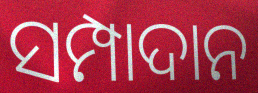
ସମ୍ପାଦାନ